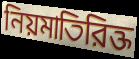
নিয়মাতিরিক্ত